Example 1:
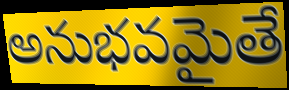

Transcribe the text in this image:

అనుభవమైతే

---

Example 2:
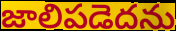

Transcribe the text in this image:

జాలిపడెదను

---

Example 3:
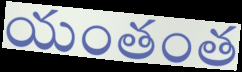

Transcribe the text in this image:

యంతంత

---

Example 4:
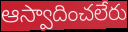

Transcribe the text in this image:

ఆస్వాదించలేరు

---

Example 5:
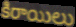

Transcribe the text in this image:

కిరాయిలు